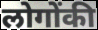
लोगोंकी